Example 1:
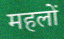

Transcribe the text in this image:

महलों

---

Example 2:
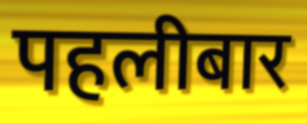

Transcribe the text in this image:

पहलीबार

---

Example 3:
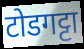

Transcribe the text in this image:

टोडगट्टा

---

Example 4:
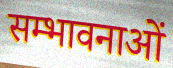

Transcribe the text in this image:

सम्भावनाओं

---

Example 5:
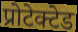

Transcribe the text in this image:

प्रोटेक्टेड